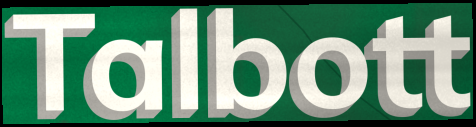
Talbott